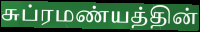
சுப்ரமண்யத்தின்